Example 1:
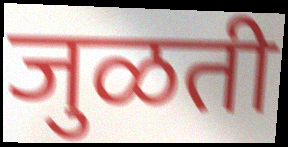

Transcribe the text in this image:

जुळती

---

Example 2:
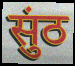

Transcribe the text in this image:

सुंठ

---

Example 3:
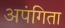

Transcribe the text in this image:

अपंगिता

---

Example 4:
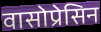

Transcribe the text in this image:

वासोप्रेसिन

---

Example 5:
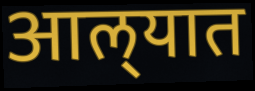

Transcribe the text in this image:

आल्यात